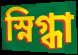
স্নিগ্ধা